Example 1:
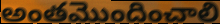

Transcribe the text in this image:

అంతమొందించాలి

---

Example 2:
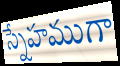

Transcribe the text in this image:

స్నేహముగా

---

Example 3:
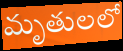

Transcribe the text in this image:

మృతులలో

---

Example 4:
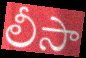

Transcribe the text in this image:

లీసా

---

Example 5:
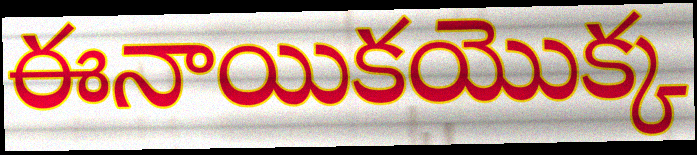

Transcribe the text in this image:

ఈనాయికయొక్క